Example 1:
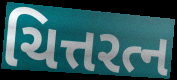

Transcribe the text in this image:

ચિત્તરત્ન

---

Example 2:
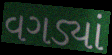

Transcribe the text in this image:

વગડ્યાં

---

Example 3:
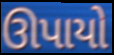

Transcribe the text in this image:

ઊપાયો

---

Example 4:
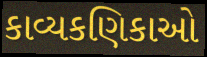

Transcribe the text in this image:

કાવ્યકણિકાઓ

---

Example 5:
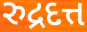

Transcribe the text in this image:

રુદ્રદત્ત